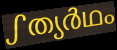
ഽത്യർഥം